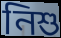
নিশু